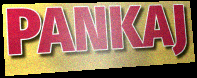
PANKAJ